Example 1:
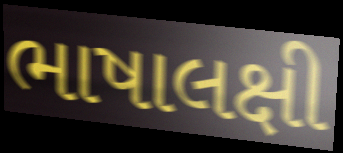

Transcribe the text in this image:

ભાષાલક્ષી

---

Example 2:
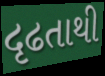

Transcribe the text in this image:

દૃઢતાથી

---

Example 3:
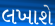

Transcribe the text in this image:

લખાશે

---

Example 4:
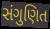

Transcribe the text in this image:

સંગુણિત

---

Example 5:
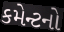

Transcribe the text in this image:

કમેન્ટનો